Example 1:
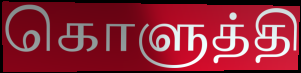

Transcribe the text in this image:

கொளுத்தி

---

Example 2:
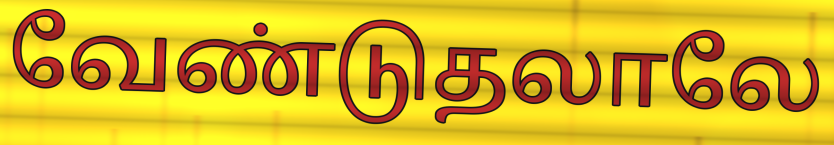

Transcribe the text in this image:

வேண்டுதலாலே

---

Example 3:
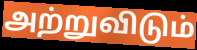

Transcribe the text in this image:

அற்றுவிடும்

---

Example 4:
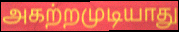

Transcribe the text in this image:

அகற்றமுடியாது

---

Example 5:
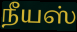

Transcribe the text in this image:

நீயஸ்